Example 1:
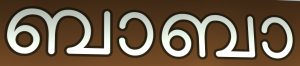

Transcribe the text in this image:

ബാബാ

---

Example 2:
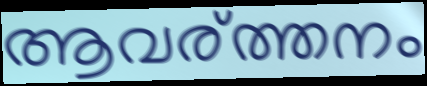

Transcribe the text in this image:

ആവര്ത്തനം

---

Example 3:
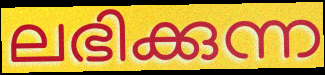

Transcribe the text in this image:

ലഭിക്കുന്ന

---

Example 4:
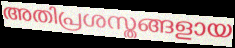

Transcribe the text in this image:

അതിപ്രശസ്തങ്ങളായ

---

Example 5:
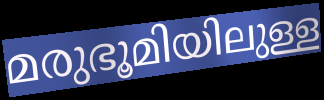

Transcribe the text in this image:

മരുഭൂമിയിലുള്ള